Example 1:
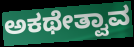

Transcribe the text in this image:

ಅಕಥೇತ್ವಾವ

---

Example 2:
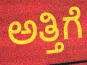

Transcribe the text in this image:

ಅತ್ತಿಗೆ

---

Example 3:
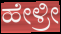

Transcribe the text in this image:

ಹೇಳ್ರೀ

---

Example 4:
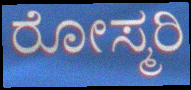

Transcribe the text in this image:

ರೋಸ್ಮರಿ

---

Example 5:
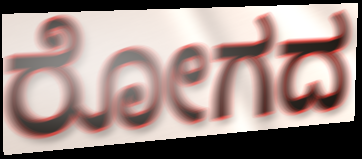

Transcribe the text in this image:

ರೋಗದ